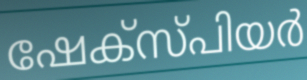
ഷേക്സ്പിയർ